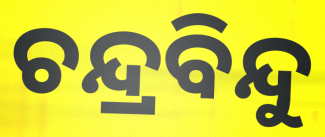
ଚନ୍ଦ୍ରବିନ୍ଦୁ